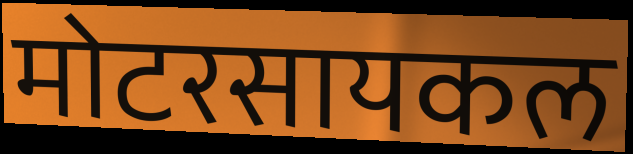
मोटरसायकल